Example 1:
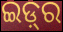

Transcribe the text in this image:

ଇଡ଼୍‍ର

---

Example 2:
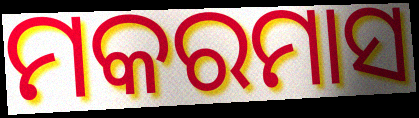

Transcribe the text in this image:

ମକରମାସ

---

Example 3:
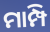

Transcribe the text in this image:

ମାମ୍ପି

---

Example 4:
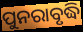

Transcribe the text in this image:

ପୁନରାବୃଦ୍ଧି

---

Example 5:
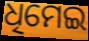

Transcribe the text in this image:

ଧିମେଇ